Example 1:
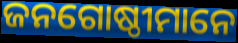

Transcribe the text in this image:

ଜନଗୋଷ୍ଠୀମାନେ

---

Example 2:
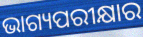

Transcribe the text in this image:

ଭାଗ୍ୟପରୀକ୍ଷାର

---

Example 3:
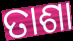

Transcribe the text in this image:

ତାଶା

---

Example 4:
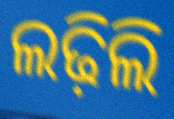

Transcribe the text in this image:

ଲଢ଼ିଲି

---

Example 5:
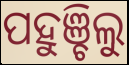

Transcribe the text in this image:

ପହୁଞ୍ଚିଲୁ